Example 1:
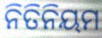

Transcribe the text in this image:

ନିତିନିୟମ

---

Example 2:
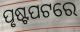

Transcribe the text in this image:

ପୃଷ୍ଟପଟରେ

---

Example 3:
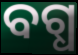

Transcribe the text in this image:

ବଗ୍ଧ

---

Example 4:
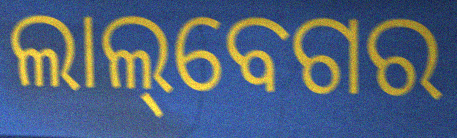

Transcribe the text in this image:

ଲାଲ୍‌ବେଗର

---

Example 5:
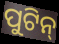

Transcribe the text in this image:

ପୁଟିନ୍